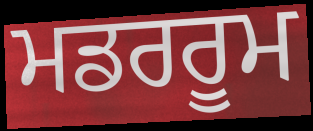
ਮਡਰਰੂਮ